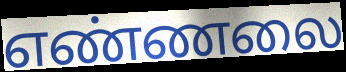
எண்ணலை